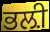
ਭਲ਼ੀ